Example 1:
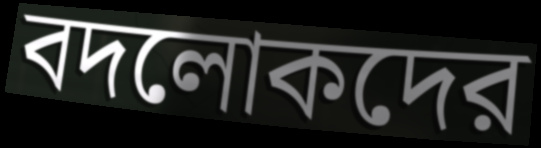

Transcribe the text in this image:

বদলোকদের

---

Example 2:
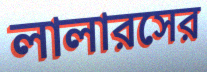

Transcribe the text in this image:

লালারসের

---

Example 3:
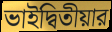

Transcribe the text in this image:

ভাইদ্বিতীয়ার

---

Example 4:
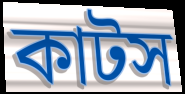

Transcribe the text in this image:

কাটস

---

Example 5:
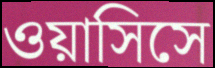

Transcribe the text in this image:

ওয়াসিসে